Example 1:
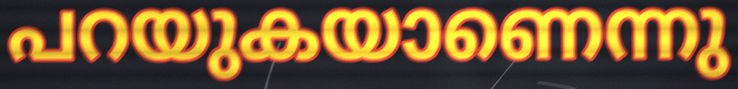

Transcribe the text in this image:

പറയുകയാണെന്നു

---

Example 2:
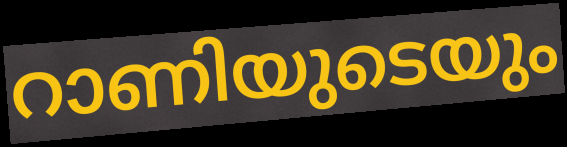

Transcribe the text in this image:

റാണിയുടെയും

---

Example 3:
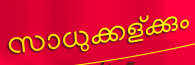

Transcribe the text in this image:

സാധുക്കള്ക്കും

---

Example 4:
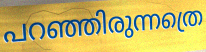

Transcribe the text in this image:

പറഞ്ഞിരുന്നത്രെ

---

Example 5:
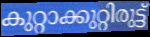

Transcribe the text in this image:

കുറ്റാക്കുറ്റിരുട്ട്